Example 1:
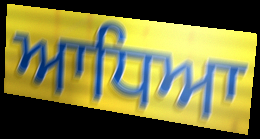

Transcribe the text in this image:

ਆਧਿਆ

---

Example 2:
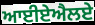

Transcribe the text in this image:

ਆਈਏਐਲਏ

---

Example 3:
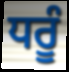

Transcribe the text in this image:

ਧਰੂੰ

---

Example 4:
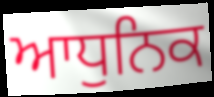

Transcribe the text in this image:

ਆਧੁਨਿਕ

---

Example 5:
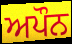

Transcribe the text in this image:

ਅਪੌਨ